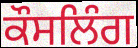
ਕੌਸਲਿੰਗ